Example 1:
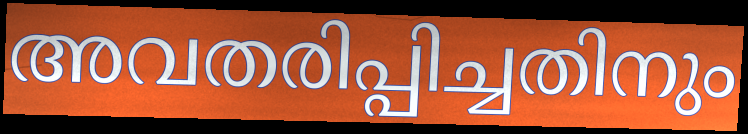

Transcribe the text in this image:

അവതരിപ്പിച്ചതിനും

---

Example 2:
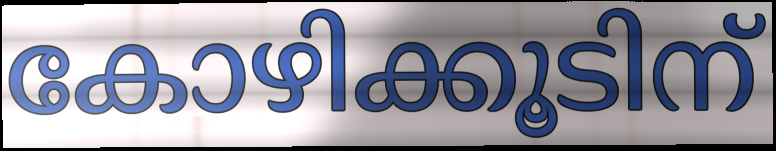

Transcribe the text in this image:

കോഴിക്കൂടിന്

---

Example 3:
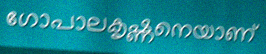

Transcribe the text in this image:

ഗോപാലകൃഷ്ണനെയാണ്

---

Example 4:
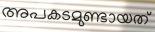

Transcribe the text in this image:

അപകടമുണ്ടായത്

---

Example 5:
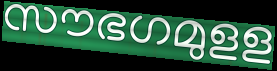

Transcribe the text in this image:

സൗഭഗമുളള